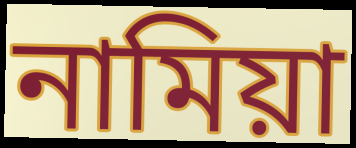
নামিয়া